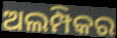
ଅଲମ୍ପିକର